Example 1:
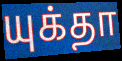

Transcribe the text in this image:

யுக்தா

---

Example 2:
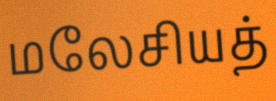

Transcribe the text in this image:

மலேசியத்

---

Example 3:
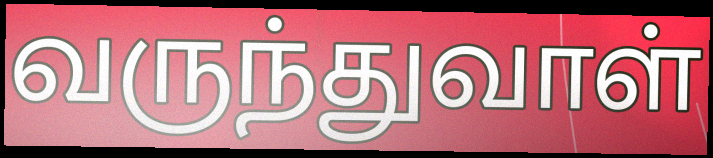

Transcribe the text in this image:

வருந்துவாள்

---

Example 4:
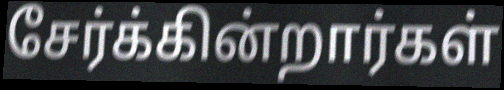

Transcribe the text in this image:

சேர்க்கின்றார்கள்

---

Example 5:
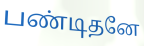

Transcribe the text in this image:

பண்டிதனே